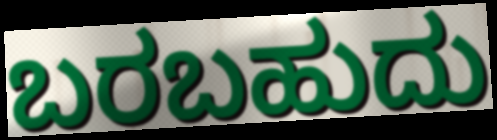
ಬರಬಹುದು